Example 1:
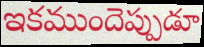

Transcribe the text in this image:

ఇకముందెప్పుడూ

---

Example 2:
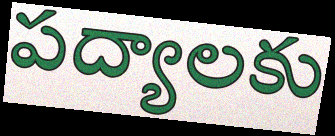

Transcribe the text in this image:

పద్యాలకు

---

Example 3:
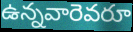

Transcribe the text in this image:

ఉన్నవారెవరూ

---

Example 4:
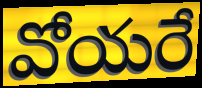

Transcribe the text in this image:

వోయరే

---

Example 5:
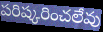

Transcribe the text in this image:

పరిష్కరించలేవు